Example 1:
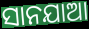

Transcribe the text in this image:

ସାନଯାଆ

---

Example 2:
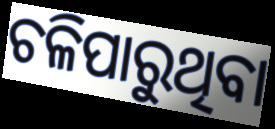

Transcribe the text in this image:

ଚଳିପାରୁଥିବା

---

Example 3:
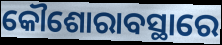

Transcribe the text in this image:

କୌଶୋରାବସ୍ଥାରେ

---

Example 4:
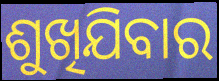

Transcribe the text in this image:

ଶୁଖିଯିବାର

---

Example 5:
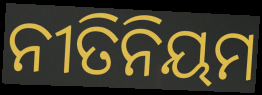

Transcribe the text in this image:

ନୀତିନିୟମ